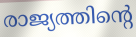
രാജ്യത്തിന്റെ